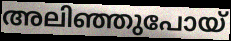
അലിഞ്ഞുപോയ്